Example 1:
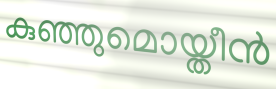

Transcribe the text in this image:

കുഞ്ഞുമൊയ്തീൻ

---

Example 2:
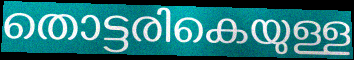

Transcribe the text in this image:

തൊട്ടരികെയുള്ള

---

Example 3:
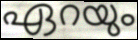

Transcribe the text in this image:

ഏറയും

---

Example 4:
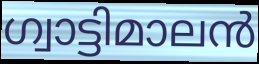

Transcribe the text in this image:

ഗ്വാട്ടിമാലൻ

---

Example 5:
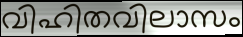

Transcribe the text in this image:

വിഹിതവിലാസം